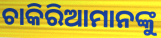
ଚାକିରିଆମାନଙ୍କୁ